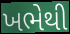
ખભેથી